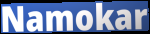
Namokar